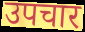
उपचार